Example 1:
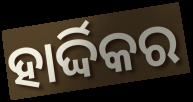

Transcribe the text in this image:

ହାର୍ଦ୍ଦିକର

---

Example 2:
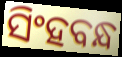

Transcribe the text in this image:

ସିଂହବନ୍ଧ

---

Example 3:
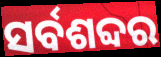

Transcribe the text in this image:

ସର୍ବଶବ୍ଦର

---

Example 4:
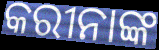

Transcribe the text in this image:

କରୀନାଙ୍କ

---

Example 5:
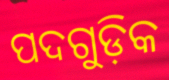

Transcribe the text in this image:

ପଦଗୁଡ଼ିକ